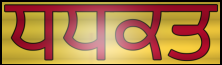
ਧਧਕਤ